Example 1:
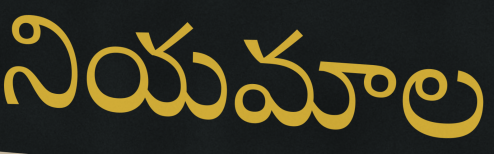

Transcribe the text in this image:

నియమాల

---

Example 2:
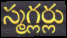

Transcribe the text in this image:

స్మగ్లర్లు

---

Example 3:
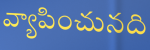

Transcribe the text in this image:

వ్యాపించునది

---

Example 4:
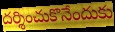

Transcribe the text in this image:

దర్శించుకొనేందుకు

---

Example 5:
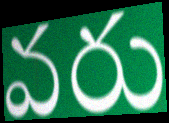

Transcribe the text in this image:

వరు